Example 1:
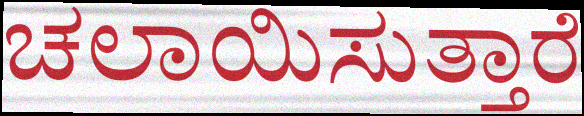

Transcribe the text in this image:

ಚಲಾಯಿಸುತ್ತಾರೆ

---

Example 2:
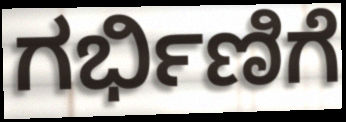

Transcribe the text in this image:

ಗರ್ಭಿಣಿಗೆ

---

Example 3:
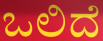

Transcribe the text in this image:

ಒಲಿದೆ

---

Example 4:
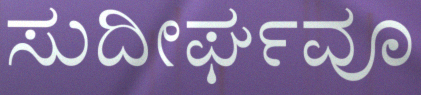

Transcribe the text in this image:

ಸುದೀರ್ಘವೂ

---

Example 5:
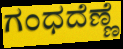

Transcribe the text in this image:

ಗಂಧದೆಣ್ಣೆ